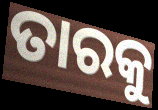
ତାରକୁ